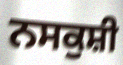
ਨਸਕੁਸ਼ੀ